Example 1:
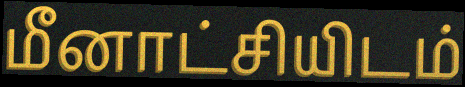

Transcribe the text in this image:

மீனாட்சியிடம்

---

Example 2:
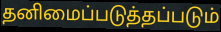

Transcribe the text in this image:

தனிமைப்படுத்தப்படும்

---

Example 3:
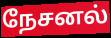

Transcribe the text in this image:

நேசனல்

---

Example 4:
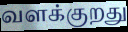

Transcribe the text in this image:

வளக்குறது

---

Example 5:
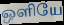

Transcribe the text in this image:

ஒளியே